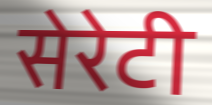
सेरेटी